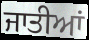
ਜਾਤੀਆਂ